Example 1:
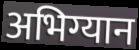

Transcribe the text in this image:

अभिग्यान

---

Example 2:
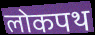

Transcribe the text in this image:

लोकपथ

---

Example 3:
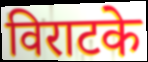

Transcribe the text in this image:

विराटके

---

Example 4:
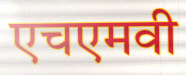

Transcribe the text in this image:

एचएमवी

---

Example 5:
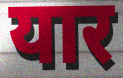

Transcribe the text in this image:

यार